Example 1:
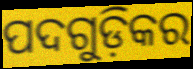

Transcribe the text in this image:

ପଦଗୁଡ଼ିକର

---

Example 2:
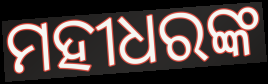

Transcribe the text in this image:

ମହୀଧରଙ୍କ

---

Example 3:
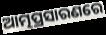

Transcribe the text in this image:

ଆତ୍ମପ୍ରସାରଣରେ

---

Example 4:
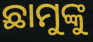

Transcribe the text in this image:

ଛାମୁଙ୍କୁ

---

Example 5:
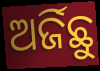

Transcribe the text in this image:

ଅର୍ଜିଛୁ